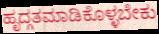
ಹೃದ್ಗತಮಾಡಿಕೊಳ್ಳಬೇಕು